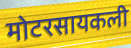
मोटरसायकली